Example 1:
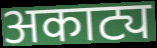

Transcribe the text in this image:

अकाट्य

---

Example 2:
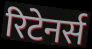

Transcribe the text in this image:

रिटेनर्स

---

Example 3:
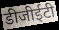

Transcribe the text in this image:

डीजीईटी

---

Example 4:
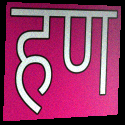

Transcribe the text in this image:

हण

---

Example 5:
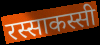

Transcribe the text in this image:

रस्साकस्सी